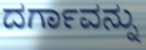
ದರ್ಗಾವನ್ನು